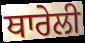
ਥਾਰੇਲੀ